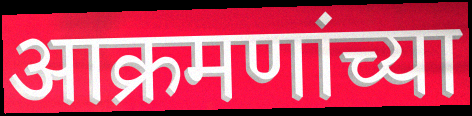
आक्रमणांच्या